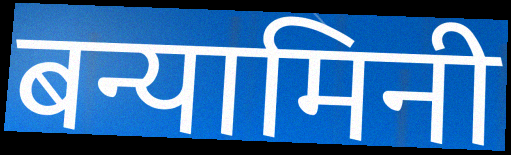
बन्यामिनी